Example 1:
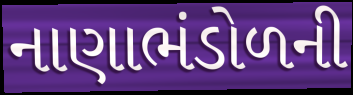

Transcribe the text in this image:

નાણાભંડોળની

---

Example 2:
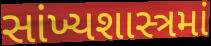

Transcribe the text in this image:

સાંખ્યશાસ્ત્રમાં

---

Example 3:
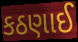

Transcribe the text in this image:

કઠણાઈ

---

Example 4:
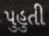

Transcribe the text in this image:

પુહુતી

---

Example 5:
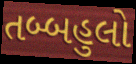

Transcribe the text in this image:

તબ્બહુલો